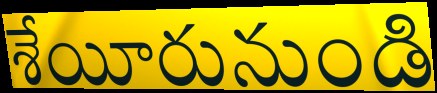
శేయీరునుండి